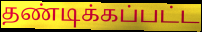
தண்டிக்கப்பட்ட